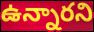
ఉన్నారని